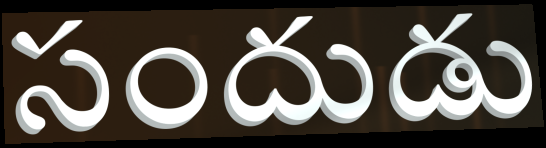
సందుడు